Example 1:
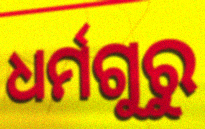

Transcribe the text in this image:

ଧର୍ମଗୁରୁ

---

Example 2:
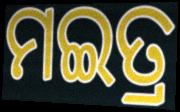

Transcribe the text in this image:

ମଇତ୍ର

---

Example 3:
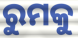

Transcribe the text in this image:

ରୁମକୁ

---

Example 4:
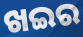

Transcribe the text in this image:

ଖଇର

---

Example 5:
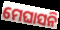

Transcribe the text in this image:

ମେଘାସନି